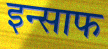
इन्साफ